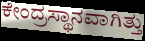
ಕೇಂದ್ರಸ್ಥಾನವಾಗಿತ್ತು